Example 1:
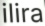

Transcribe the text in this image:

ilira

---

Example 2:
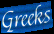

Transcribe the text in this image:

Greeks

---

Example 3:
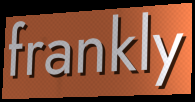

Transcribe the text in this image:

frankly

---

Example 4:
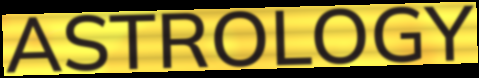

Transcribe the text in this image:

ASTROLOGY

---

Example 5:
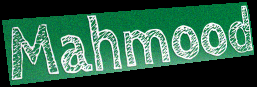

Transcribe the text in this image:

Mahmood